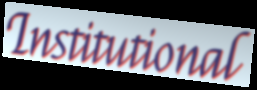
Institutional